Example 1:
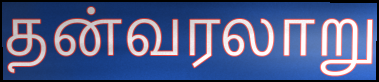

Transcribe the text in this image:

தன்வரலாறு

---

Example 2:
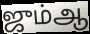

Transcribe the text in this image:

ஜும்ஆ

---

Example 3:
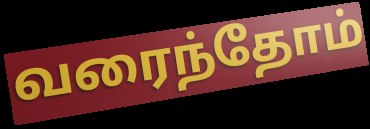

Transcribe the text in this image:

வரைந்தோம்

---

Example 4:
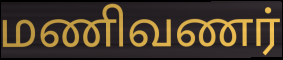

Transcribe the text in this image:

மணிவணர்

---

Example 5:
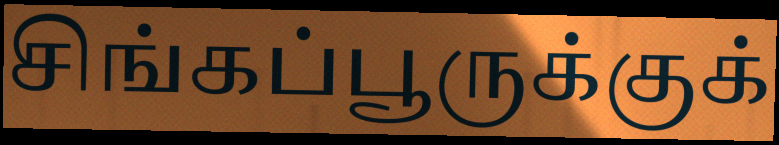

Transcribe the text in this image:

சிங்கப்பூருக்குக்